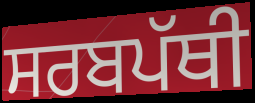
ਸਰਬਪੱਥੀ